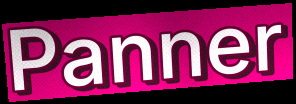
Panner